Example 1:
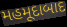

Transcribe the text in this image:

મહમૂદાબાદ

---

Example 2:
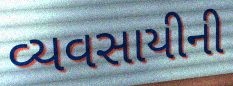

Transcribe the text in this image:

વ્યવસાયીની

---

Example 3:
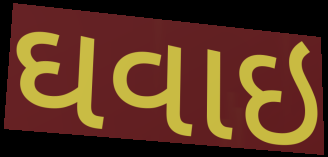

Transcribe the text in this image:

ઘવાઇ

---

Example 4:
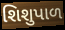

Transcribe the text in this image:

શિશુપાળ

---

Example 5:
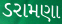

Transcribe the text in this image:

ડરામણા